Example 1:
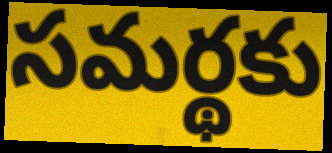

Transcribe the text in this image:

సమర్థకు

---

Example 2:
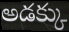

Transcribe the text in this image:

అడక్కు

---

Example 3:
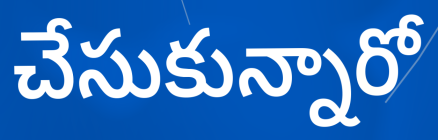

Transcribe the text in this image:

చేసుకున్నారో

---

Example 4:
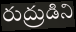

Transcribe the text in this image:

రుద్రుడిని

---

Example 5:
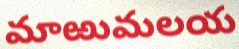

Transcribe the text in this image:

మాఱుమలయ